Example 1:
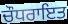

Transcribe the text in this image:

ਚੌਧਰਾਇਤ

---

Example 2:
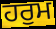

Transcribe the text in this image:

ਹਰੁਮ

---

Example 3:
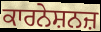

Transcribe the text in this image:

ਕਾਰਨੇਸ਼ਨਜ਼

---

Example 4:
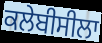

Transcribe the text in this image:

ਕਲੇਬੀਸੀਲਾ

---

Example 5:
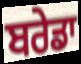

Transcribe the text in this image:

ਬਰੇਡਾ